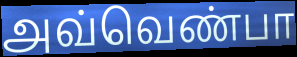
அவ்வெண்பா